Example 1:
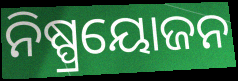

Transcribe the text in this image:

ନିଷ୍ପ୍ରୟୋଜନ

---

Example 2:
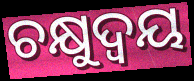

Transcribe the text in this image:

ଚକ୍ଷୁଦ୍ୱୟ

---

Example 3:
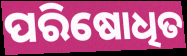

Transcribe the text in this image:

ପରିଷୋଧିତ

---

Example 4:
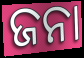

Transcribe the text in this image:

ଜନା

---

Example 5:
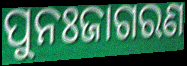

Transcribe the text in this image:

ପୁନଃଜାଗରଣ